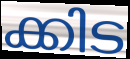
ക്കിട